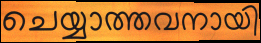
ചെയ്യാത്തവനായി